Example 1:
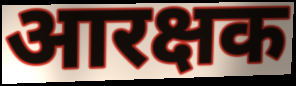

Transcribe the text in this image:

आरक्षक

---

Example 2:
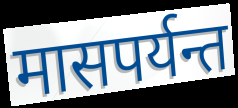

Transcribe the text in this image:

मासपर्यन्त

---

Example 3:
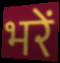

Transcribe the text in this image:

भरें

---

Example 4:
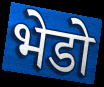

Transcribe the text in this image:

भेडो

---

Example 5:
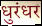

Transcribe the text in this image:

धुरंधर